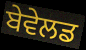
ਬੇਵੇਲਡ